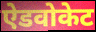
ऐडवोकेट